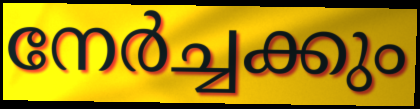
നേർച്ചക്കും